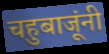
चहुबाजूंनी